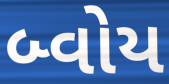
બ્વોય